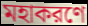
মহাকরণে